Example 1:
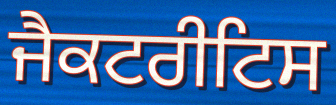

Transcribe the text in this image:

ਜੈਕਟਰੀਟਿਸ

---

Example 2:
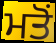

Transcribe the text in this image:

ਮਤੋਂ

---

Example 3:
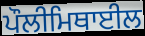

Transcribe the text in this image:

ਪੌਲੀਮਿਥਾਈਲ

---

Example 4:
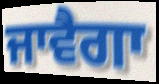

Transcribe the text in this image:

ਜਾਵੈਗਾ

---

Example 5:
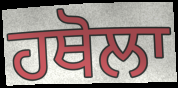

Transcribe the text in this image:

ਹਥੋਲਾ